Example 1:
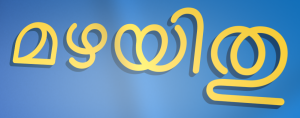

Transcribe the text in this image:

മഴയിതു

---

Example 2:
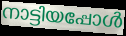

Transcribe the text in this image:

നാട്ടിയപ്പോൾ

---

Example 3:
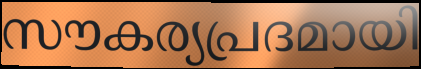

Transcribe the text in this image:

സൗകര്യപ്രദമായി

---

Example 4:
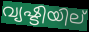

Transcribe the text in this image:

വ്യഷ്ടിയില്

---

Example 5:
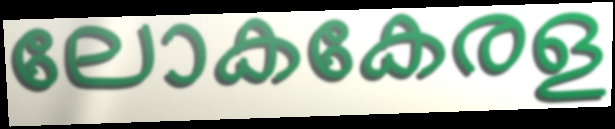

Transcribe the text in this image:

ലോകകേരള